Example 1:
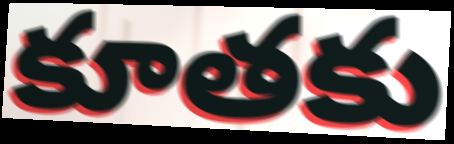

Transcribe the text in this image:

కూతకు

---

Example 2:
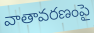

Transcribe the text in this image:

వాతావరణంపై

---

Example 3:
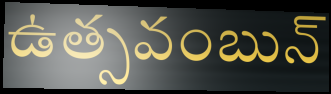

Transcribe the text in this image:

ఉత్సవంబున్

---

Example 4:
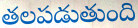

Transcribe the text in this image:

తలపడుతుంది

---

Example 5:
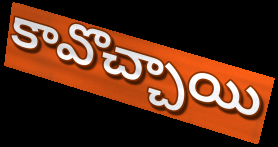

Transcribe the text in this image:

కావొచ్చాయి